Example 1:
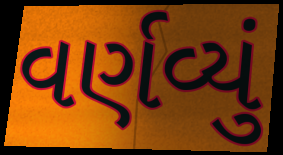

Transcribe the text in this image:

વર્ણવ્યું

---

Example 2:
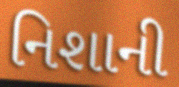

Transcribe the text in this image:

નિશાની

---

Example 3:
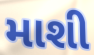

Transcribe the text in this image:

માશી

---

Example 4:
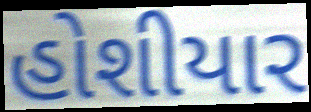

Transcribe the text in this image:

હોશીયાર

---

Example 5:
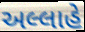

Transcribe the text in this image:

અલ્લાહે